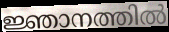
ജ്ഞാനത്തിൽ